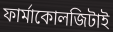
ফার্মাকোলজিটাই